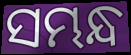
ସମ୍ଭନ୍ଧ